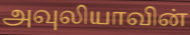
அவுலியாவின்